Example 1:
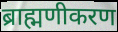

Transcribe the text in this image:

ब्राह्मणीकरण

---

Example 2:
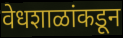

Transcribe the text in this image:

वेधशाळांकडून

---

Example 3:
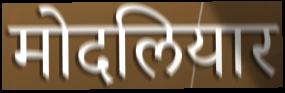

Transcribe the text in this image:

मोदलियार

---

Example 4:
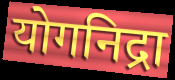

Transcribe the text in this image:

योगनिद्रा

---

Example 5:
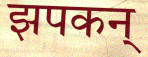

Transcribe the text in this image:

झपकन्